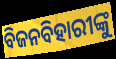
ବିଜନବିହାରୀଙ୍କୁ